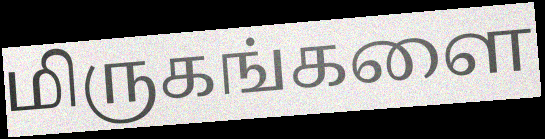
மிருகங்களை